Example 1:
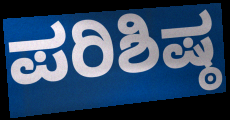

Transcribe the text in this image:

ಪರಿಶಿಷ್ಠ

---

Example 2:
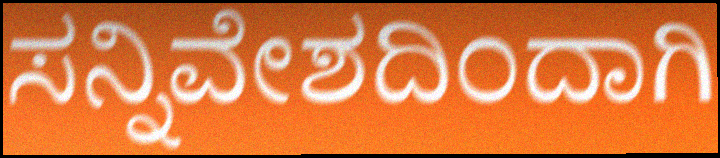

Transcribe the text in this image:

ಸನ್ನಿವೇಶದಿಂದಾಗಿ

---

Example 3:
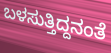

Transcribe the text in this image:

ಬಳಸುತ್ತಿದ್ದನಂತೆ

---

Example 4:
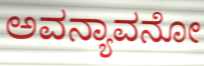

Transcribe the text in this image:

ಅವನ್ಯಾವನೋ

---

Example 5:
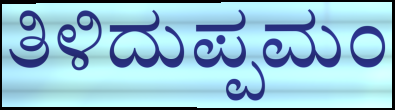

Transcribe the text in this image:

ತಿಳಿದುಪ್ಪಮಂ